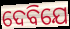
ଦେବିଯେ